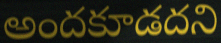
అందకూడదని